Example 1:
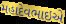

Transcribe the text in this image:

મહાદેવભાઇએ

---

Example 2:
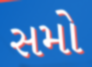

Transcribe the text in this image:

સમો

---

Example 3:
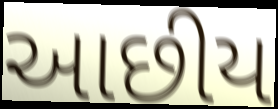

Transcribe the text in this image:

આછીય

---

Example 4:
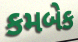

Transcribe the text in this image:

કમબેક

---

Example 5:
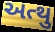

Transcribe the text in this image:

અત્થુ